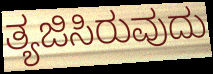
ತ್ಯಜಿಸಿರುವುದು